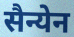
सैन्येन